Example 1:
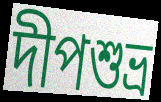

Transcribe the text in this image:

দীপশুভ্র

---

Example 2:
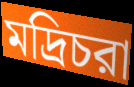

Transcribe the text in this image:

মদ্রিচরা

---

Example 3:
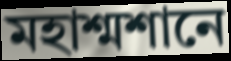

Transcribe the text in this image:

মহাশ্মশানে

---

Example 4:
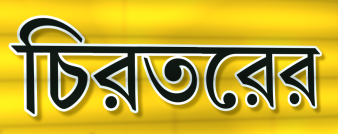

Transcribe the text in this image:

চিরতরের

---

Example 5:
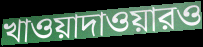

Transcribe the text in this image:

খাওয়াদাওয়ারও